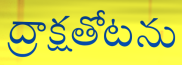
ద్రాక్షతోటను